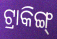
ଟ୍ରାକିଙ୍ଗ୍